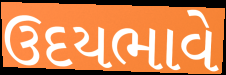
ઉદયભાવે